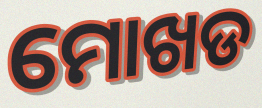
ମୋଖଡ